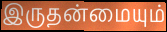
இருதன்மையும்